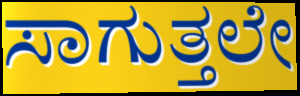
ಸಾಗುತ್ತಲೇ